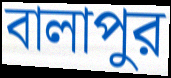
বালাপুর